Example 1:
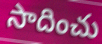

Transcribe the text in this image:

సాదించు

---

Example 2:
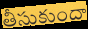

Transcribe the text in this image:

తీసుకుందా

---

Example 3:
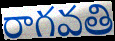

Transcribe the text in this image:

రాగవతి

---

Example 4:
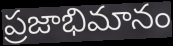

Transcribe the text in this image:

ప్రజాభిమానం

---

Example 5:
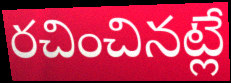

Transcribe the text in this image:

రచించినట్లే